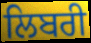
ਲਿਬਰੀ